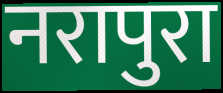
नरापुरा